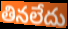
తినలేదు